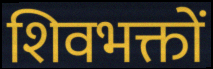
शिवभक्तों